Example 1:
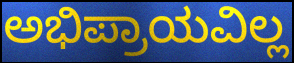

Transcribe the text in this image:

ಅಭಿಪ್ರಾಯವಿಲ್ಲ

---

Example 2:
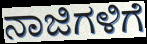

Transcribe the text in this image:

ನಾಜಿಗಳಿಗೆ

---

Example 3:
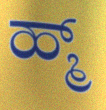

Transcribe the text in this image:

ಹ್ಮ್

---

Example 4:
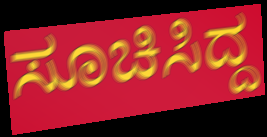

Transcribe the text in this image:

ಸೂಚಿಸಿದ್ದ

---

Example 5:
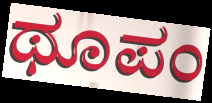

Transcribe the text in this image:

ಥೂಪಂ